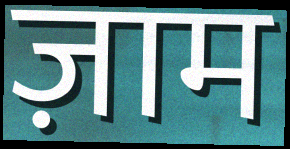
ज़ाम